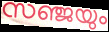
സഞ്ജയും